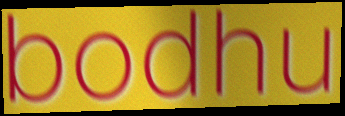
bodhu